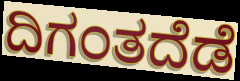
ದಿಗಂತದೆಡೆ